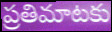
ప్రతిమాటకు